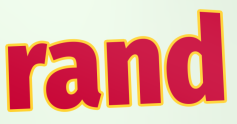
rand